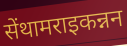
सेंथामराइकन्नन